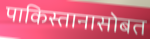
पाकिस्तानासोबत